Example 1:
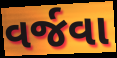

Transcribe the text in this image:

વર્જવા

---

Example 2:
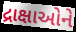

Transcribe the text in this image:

દ્રાક્ષાઓને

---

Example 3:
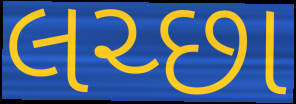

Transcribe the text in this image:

લચ્છા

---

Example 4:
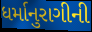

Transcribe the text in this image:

ધર્માનુરાગીની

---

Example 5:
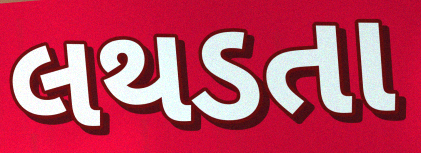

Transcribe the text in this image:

લથડતા